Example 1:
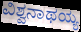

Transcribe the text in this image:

ವಿಶ್ವನಾಥಯ್ಯ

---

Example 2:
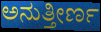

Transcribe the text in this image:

ಅನುತ್ತೀರ್ಣ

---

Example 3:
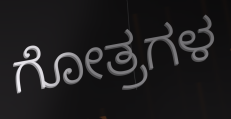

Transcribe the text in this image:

ಗೋತ್ರಗಳ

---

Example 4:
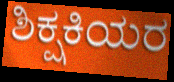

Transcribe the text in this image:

ಶಿಕ್ಷಕಿಯರ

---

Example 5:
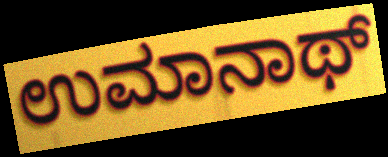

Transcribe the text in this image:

ಉಮಾನಾಥ್